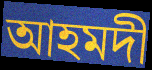
আহমদী